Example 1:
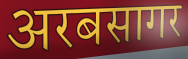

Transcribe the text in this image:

अरबसागर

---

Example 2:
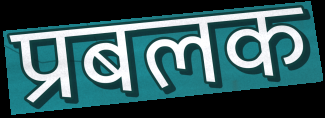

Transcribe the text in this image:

प्रबलक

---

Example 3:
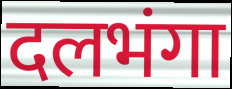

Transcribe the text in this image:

दलभंगा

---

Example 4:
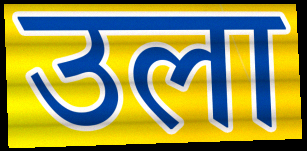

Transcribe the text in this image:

उला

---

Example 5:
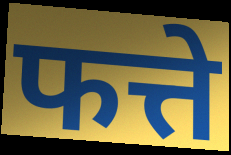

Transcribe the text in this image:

फत्ते